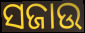
ସଜାଉ